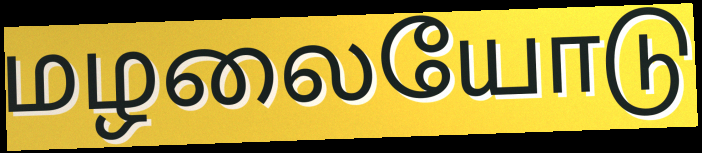
மழலையோடு